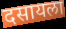
दसायला